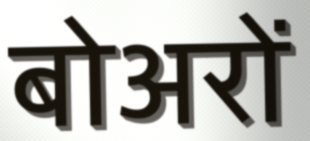
बोअरों